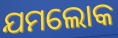
ଯମଲୋକ